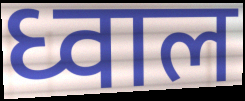
ध्वाल